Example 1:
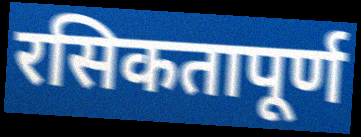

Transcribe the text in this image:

रसिकतापूर्ण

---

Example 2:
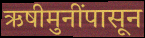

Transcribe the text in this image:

ऋषीमुनींपासून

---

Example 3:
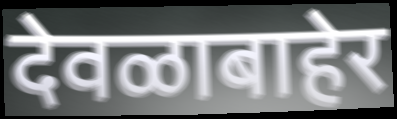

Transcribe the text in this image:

देवळाबाहेर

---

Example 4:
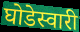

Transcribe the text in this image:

घोडेस्वारी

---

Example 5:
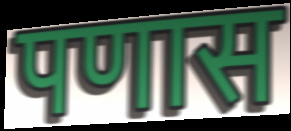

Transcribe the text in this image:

पणास